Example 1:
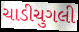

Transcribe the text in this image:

ચાડીચુગલી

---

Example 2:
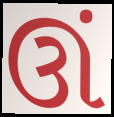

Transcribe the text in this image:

ઊં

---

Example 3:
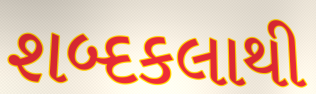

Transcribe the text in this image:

શબ્દકલાથી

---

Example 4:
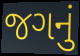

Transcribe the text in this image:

જગનું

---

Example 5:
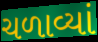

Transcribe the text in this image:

ચળાવ્યાં